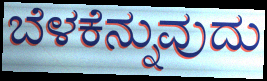
ಬೆಳಕೆನ್ನುವುದು